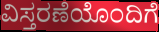
ವಿಸ್ತರಣೆಯೊಂದಿಗೆ